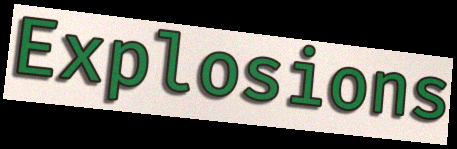
Explosions